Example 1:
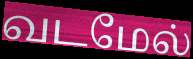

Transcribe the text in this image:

வடமேல்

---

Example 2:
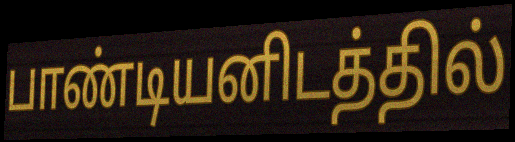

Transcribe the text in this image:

பாண்டியனிடத்தில்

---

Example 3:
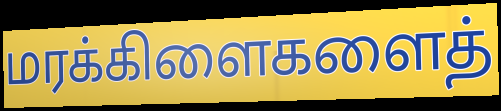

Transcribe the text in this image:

மரக்கிளைகளைத்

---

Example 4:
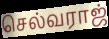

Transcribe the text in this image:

செல்வராஜ்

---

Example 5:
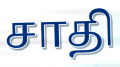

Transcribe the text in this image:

சாதி